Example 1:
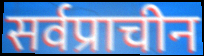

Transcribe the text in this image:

सर्वप्राचीन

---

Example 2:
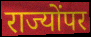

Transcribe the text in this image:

राज्योंपर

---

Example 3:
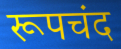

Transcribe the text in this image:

रूपचंद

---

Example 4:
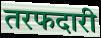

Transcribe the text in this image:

तरफदारी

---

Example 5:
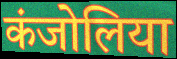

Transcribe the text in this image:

कंजोलिया